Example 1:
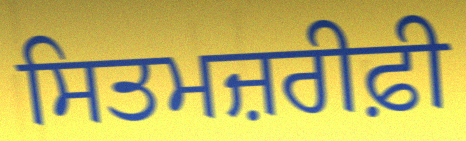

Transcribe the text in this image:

ਸਿਤਮਜ਼ਰੀਫ਼ੀ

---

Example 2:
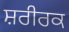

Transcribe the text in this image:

ਸ਼ਰੀਰਕ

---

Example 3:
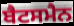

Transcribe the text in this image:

ਬੈਟਸਮੈਨ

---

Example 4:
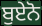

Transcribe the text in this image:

ਬੁਏਨੋ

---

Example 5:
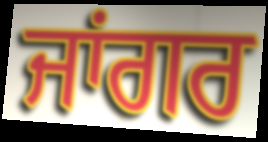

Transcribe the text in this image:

ਜਾਂਗਰ